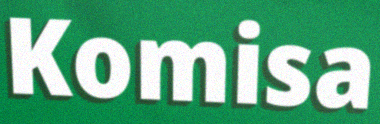
Komisa